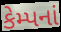
કેમ્પનાં